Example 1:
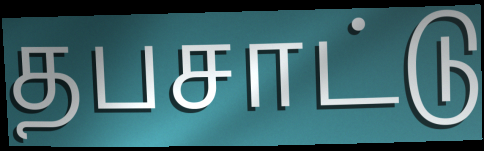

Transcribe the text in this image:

தபசாட்டு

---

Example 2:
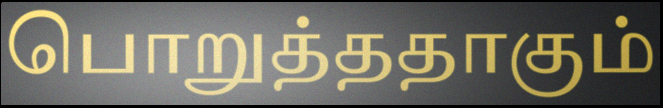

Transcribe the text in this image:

பொறுத்ததாகும்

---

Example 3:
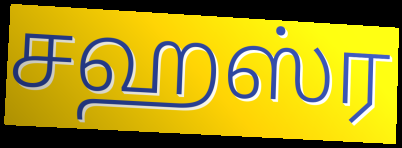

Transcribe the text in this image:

சஹஸ்ர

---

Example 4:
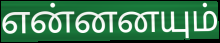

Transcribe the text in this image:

என்னனயும்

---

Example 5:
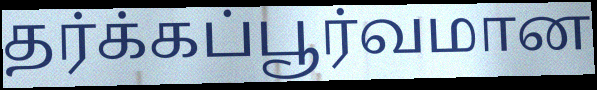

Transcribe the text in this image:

தர்க்கப்பூர்வமான